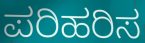
ಪರಿಹರಿಸ